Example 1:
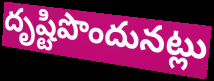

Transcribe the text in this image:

దృష్టిపొందునట్లు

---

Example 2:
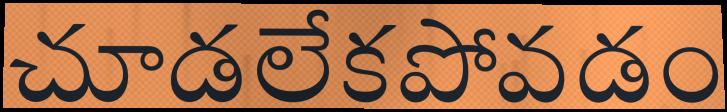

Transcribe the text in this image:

చూడలేకపోవడం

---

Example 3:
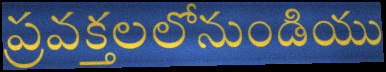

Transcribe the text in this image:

ప్రవక్తలలోనుండియు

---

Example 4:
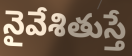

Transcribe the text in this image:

నైవేశితుస్తే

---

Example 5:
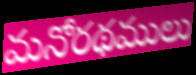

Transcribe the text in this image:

మనోరథములు